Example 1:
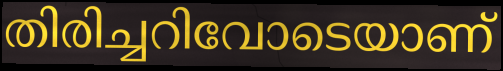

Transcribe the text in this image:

തിരിച്ചറിവോടെയാണ്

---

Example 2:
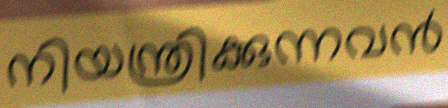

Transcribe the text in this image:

നിയന്ത്രിക്കുന്നവൻ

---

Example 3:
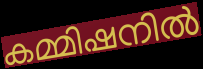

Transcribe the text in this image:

കമ്മിഷനിൽ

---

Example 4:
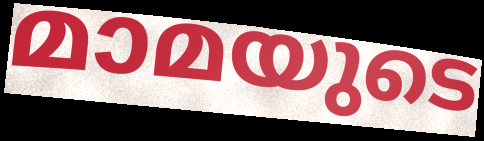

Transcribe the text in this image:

മാമയുടെ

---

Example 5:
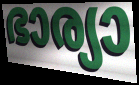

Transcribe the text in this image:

ഭാര്യാ